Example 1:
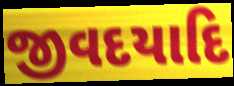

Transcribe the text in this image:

જીવદયાદિ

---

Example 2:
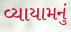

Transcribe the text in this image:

વ્યાયામનું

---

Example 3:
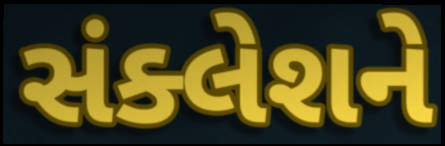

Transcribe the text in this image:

સંક્લેશને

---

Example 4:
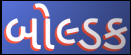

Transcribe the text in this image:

બોલ્ડક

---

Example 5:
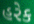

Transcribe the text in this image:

હરેક